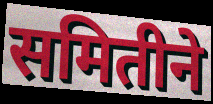
समितीने